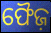
ଫୈଜ଼